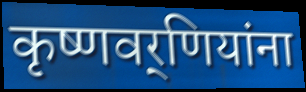
कृष्णवर्णियांना